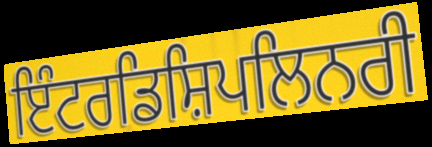
ਇੰਟਰਡਿਸ਼ਿਪਲਿਨਰੀ